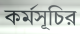
কর্মসূচির